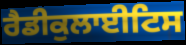
ਰੈਡੀਕੁਲਾਈਟਿਸ